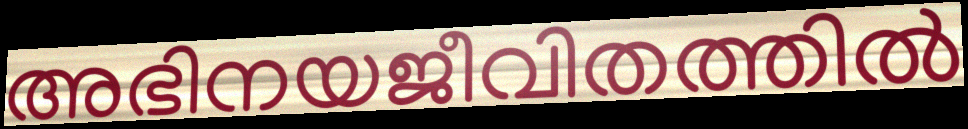
അഭിനയജീവിതത്തിൽ